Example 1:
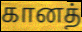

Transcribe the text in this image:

கானத்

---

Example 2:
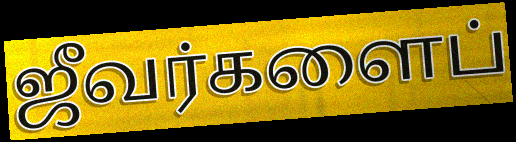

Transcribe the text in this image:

ஜீவர்களைப்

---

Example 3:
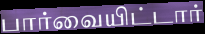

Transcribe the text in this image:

பார்வையிட்டார்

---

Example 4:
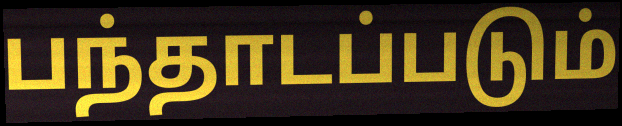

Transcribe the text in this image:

பந்தாடப்படும்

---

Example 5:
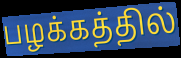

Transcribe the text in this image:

பழக்கத்தில்